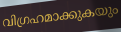
വിഗ്രഹമാക്കുകയും